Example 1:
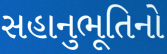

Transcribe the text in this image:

સહાનુભૂતિનો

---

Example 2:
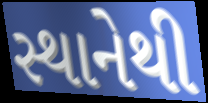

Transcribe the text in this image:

સ્થાનેથી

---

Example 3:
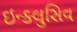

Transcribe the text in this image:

ઇન્ક્લુસિવ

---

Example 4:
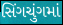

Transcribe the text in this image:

સિંગચુંગમાં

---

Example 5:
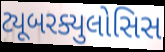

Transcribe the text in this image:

ટ્યૂબરક્યુલોસિસ